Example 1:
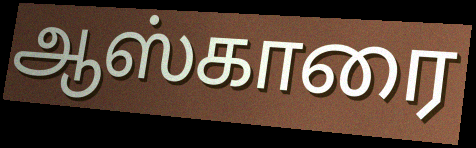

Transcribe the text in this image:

ஆஸ்காரை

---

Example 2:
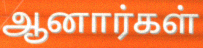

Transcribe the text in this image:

ஆனார்கள்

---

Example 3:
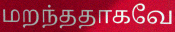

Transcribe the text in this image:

மறந்ததாகவே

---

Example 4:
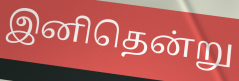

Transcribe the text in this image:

இனிதென்று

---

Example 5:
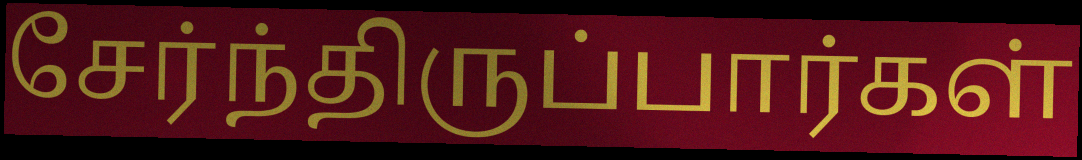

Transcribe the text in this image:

சேர்ந்திருப்பார்கள்